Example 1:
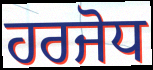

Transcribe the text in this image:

ਹਰਜੋਧ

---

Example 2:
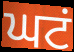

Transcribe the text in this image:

ਘਟਂ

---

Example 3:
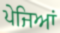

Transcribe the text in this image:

ਪੇਜਿਆਂ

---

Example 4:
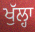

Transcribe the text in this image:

ਖੁੱਲ੍ਹਾ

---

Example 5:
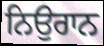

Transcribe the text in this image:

ਨਿਉਰਾਨ